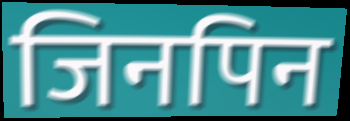
जिनपिन